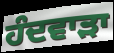
ਹੰਦਵਾੜਾ